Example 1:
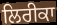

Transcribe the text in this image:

ਲਿਰੀਕਾ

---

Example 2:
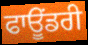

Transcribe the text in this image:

ਫਾਊਂਡਰੀ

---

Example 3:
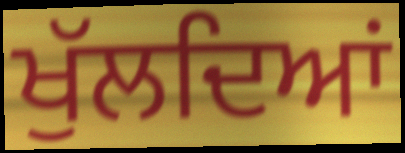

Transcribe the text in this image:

ਖੁੱਲਦਿਆਂ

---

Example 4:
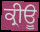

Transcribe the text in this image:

ਕ੍ਰੀਊ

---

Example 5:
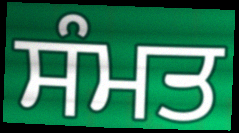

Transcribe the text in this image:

ਸੰਮਤ